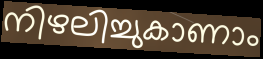
നിഴലിച്ചുകാണാം